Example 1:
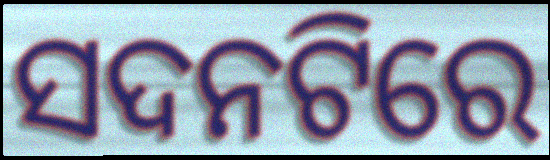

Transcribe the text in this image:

ସଦନଟିରେ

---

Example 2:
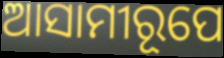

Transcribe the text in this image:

ଆସାମୀରୂପେ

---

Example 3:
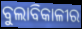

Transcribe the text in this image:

ବୁଲାବିକାଳୀର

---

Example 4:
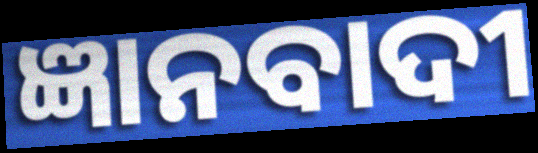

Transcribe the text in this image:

ଜ୍ଞାନବାଦୀ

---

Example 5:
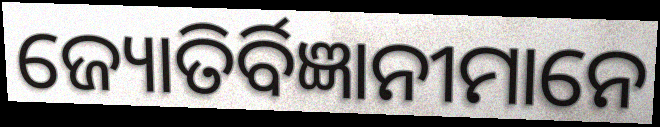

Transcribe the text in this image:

ଜ୍ୟୋତିର୍ବିଜ୍ଞାନୀମାନେ